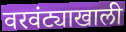
वरवंट्याखाली